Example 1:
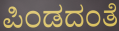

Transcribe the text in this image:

ಪಿಂಡದಂತೆ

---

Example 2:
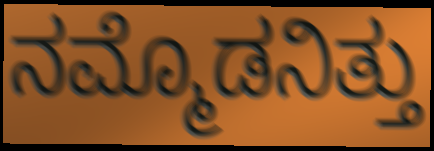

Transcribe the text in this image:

ನಮ್ಮೊಡನಿತ್ತು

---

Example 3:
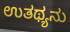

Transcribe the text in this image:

ಉತಥ್ಯನು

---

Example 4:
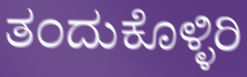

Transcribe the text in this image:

ತಂದುಕೊಳ್ಳಿರಿ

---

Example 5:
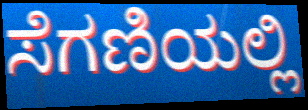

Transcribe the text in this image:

ಸೆಗಣಿಯಲ್ಲಿ